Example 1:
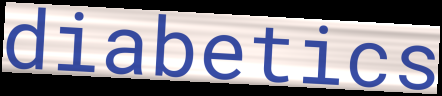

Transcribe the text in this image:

diabetics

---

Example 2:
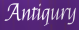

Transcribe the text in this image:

Antiqury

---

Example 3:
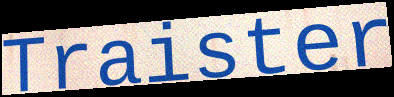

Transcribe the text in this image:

Traister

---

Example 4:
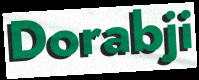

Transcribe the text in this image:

Dorabji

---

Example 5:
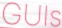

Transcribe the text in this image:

GUIs